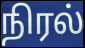
நிரல்